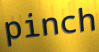
pinch